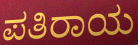
ಪತಿರಾಯ